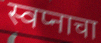
स्वप्नाचा